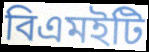
বিএমইটি